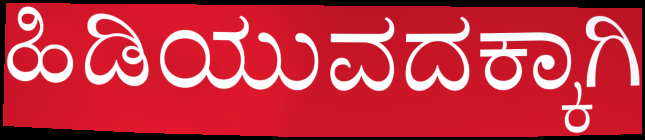
ಹಿಡಿಯುವದಕ್ಕಾಗಿ